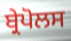
ਬ੍ਰੇਪੋਲਸ